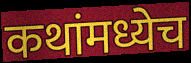
कथांमध्येच